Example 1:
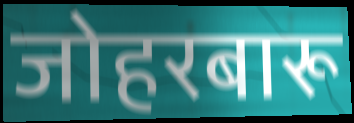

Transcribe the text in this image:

जोहरबारू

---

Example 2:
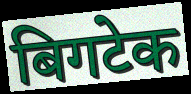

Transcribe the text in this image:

बिगटेक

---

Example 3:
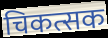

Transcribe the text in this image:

चिकत्सक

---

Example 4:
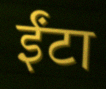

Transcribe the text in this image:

ईंटा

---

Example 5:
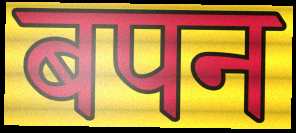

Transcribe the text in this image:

बपन